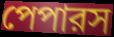
পেপারস